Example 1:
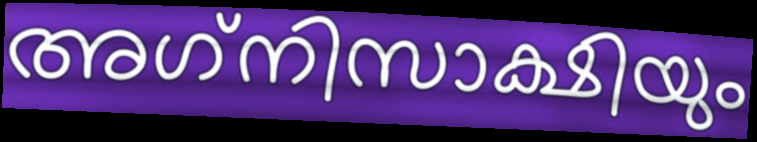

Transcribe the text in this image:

അഗ്‌നിസാക്ഷിയും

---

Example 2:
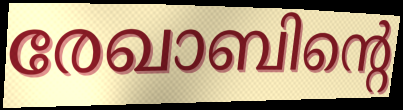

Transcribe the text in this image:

രേഖാബിന്റെ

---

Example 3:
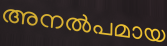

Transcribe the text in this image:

അനൽപമായ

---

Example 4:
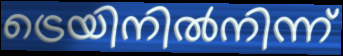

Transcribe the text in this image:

ട്രെയിനിൽനിന്ന്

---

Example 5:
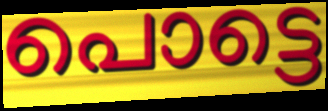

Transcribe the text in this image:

പൊട്ടെ